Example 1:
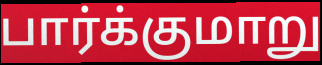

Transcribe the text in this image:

பார்க்குமாறு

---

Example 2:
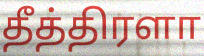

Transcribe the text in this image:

தீத்திரளா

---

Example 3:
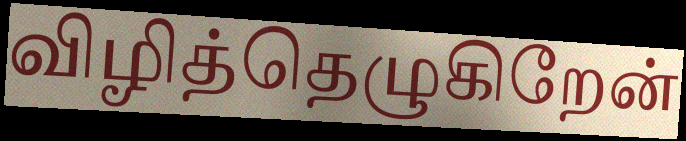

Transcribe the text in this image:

விழித்தெழுகிறேன்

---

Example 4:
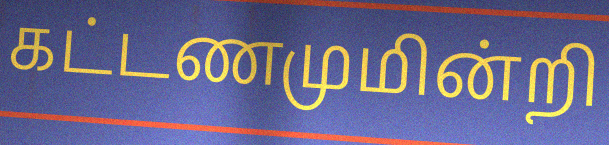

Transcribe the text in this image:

கட்டணமுமின்றி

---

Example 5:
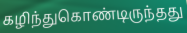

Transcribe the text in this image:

கழிந்துகொண்டிருந்தது